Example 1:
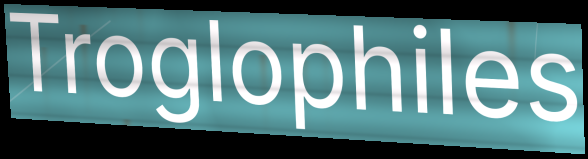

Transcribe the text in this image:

Troglophiles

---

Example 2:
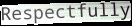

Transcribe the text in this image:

Respectfully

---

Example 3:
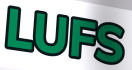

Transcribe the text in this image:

LUFS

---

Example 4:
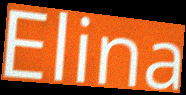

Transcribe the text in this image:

Elina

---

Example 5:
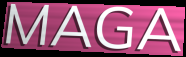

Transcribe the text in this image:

MAGA